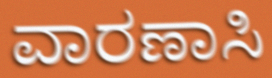
ವಾರಣಾಸಿ